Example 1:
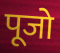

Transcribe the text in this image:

पूजो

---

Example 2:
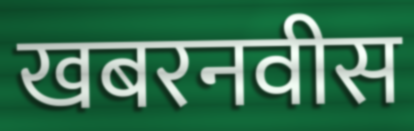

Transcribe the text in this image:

खबरनवीस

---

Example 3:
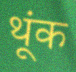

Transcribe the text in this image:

थूंक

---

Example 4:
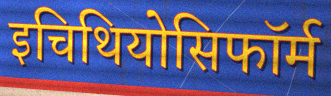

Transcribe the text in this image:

इचिथियोसिफॉर्म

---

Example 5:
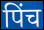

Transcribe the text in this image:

पिंच